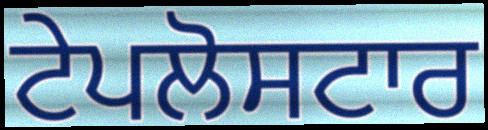
ਟੇਪਲੋਸਟਾਰ